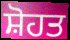
ਸ਼ੋਹਤ